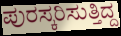
ಪುರಸ್ಕರಿಸುತ್ತಿದ್ದ